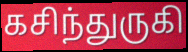
கசிந்துருகி